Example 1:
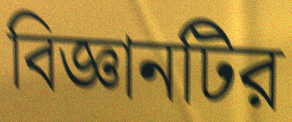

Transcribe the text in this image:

বিজ্ঞানটির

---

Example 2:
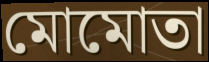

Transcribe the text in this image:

মোমোতা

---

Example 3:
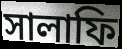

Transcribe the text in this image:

সালাফি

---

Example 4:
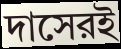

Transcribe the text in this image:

দাসেরই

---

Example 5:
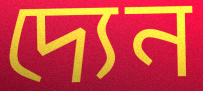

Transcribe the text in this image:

দ্যেন